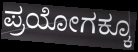
ಪ್ರಯೋಗಕ್ಕೂ